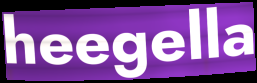
heegella